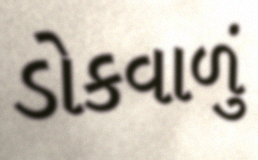
ડોકવાળું